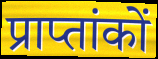
प्राप्तांकों